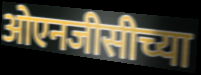
ओएनजीसीच्या